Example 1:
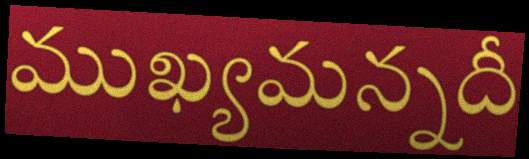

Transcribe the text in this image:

ముఖ్యమన్నదీ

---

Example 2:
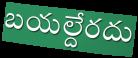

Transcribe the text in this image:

బయల్దేరదు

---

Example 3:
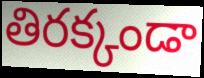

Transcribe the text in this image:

తిరక్కండా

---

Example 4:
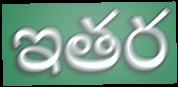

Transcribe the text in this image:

ఇతర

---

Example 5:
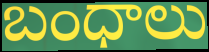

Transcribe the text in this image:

బంధాలు